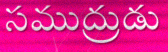
సముద్రుడు